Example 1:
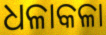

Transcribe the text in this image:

ଧଳାକଳା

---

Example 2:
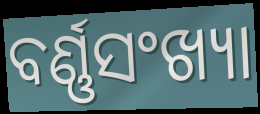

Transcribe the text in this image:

ବର୍ଣ୍ଣସଂଖ୍ୟା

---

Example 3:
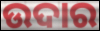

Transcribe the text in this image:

ଉଦାର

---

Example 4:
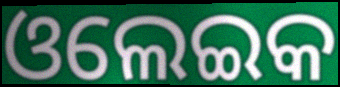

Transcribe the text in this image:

ଓଲେଇକ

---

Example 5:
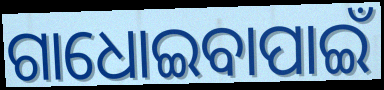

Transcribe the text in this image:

ଗାଧୋଇବାପାଇଁ